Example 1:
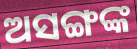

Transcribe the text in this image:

ଅସଙ୍ଗଙ୍କ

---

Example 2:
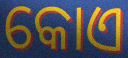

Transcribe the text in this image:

କୋଏ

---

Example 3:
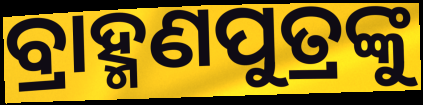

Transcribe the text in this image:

ବ୍ରାହ୍ମଣପୁତ୍ରଙ୍କୁ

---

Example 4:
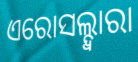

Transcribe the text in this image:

ଏରୋସଲ୍ଦ୍ୱାରା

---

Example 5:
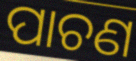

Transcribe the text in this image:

ପାଚଣ